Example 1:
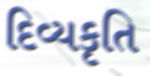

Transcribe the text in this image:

દિવ્યકૃતિ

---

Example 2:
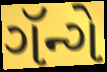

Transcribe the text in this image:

ગૅન્ગે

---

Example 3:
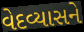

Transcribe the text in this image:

વેદવ્યાસને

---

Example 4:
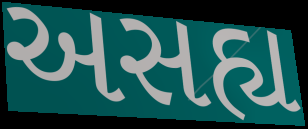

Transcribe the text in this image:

અસહ્ય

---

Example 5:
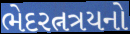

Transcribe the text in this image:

ભેદરત્નત્રયનો